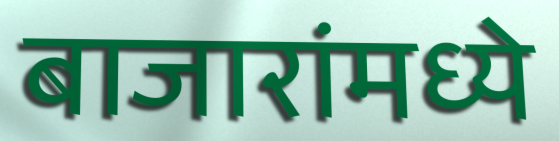
बाजारांमध्ये